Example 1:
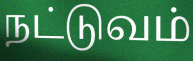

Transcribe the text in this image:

நட்டுவம்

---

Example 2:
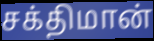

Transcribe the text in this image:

சக்திமான்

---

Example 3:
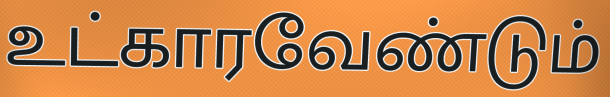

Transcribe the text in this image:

உட்காரவேண்டும்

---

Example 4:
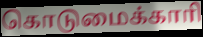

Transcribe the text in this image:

கொடுமைக்காரி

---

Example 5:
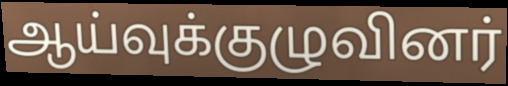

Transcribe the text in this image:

ஆய்வுக்குழுவினர்